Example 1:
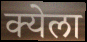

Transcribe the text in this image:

क्येला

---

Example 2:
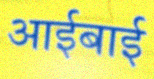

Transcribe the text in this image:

आईबाई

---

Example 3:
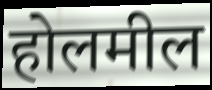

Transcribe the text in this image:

होलमील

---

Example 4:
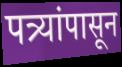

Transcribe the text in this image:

पत्र्यांपासून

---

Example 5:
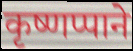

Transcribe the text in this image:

कृष्णप्पाने